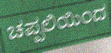
ಚಪ್ಪಲಿಯಿಂದ